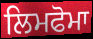
ਲਿਮਫੋਮਾ